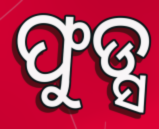
ଫୁଡ୍ସ